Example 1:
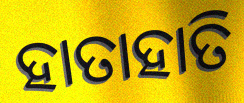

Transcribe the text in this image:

ହାତାହାତି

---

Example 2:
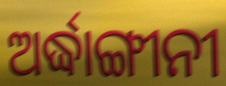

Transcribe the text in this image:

ଅର୍ଦ୍ଧାଙ୍ଗୀନୀ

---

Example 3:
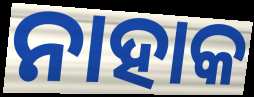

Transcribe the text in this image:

ନାହାକ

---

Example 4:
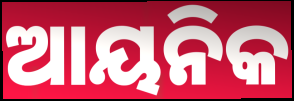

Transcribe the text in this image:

ଆୟନିକ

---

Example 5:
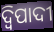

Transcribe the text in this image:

ଦ୍ୱିପାଦୀ